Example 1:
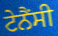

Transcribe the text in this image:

ਟੇਨੈਂਸੀ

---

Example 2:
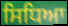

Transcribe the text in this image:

ਸਿਧਿਆ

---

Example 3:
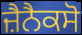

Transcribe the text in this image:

ਜ਼ੈਨੈਕਸੋ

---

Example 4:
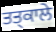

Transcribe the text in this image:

ਤਤ੍ਕਾਲੇ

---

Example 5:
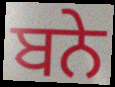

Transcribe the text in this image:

ਬਨੇ